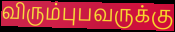
விரும்புபவருக்கு